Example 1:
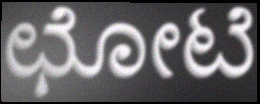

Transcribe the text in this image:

ಛೋಟೆ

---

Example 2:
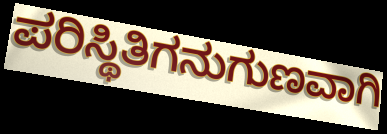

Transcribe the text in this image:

ಪರಿಸ್ಥಿತಿಗನುಗುಣವಾಗಿ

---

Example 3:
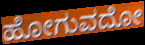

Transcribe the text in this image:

ಹೋಗುವದೋ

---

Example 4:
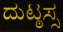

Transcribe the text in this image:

ದುಟ್ಠಸ್ಸ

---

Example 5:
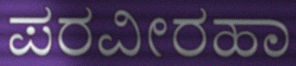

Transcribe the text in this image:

ಪರವೀರಹಾ